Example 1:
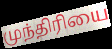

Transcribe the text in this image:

முந்திரியை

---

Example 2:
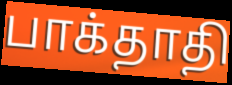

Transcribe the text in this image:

பாக்தாதி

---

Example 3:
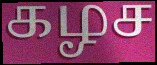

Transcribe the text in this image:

கழச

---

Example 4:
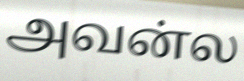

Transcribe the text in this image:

அவன்ல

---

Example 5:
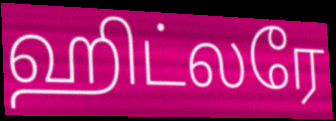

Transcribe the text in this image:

ஹிட்லரே